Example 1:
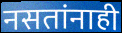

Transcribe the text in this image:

नसतांनाही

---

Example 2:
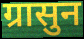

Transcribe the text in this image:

ग्रासुन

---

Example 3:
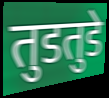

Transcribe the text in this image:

तुडतुडे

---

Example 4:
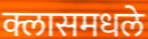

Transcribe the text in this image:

क्लासमधले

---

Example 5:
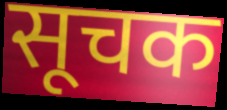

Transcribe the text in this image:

सूचक